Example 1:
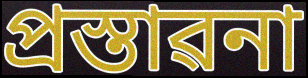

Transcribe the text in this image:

প্ৰস্তাৱনা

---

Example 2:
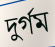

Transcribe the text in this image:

দুৰ্গম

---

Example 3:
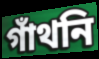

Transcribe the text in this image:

গাঁথনি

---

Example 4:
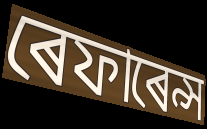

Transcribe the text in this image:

ৰেফাৰেন্স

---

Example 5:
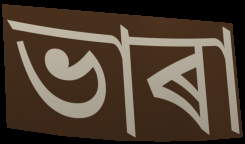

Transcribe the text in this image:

ভাৰা